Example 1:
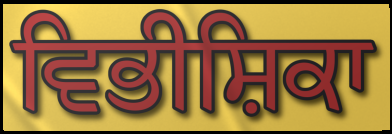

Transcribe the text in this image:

ਵਿਭੀਸ਼ਿਕਾ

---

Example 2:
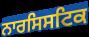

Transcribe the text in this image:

ਨਾਰਸਿਸਟਿਕ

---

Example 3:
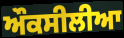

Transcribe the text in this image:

ਔਕਸੀਲੀਆ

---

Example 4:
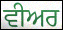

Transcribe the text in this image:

ਵੀਅਰ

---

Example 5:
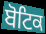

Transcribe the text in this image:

ਬੋਟਿਕ